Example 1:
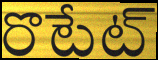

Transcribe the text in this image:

రొటేట్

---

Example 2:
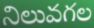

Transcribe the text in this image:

నిలువగల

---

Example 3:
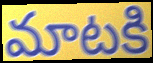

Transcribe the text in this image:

మాటకి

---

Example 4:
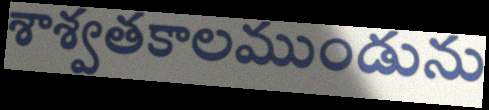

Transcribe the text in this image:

శాశ్వతకాలముండును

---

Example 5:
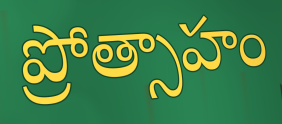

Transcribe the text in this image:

ప్రోత్సాహం